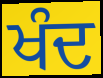
ਖੰਦ